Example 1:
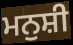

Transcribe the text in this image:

ਮਨੁਸ਼ੀ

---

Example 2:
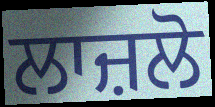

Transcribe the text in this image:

ਲਾਜ਼ਲੋ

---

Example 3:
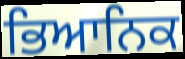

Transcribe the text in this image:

ਭਿਆਨਿਕ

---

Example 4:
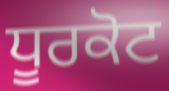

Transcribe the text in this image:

ਧੂਰਕੋਟ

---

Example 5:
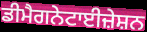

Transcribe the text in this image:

ਡੀਮੈਗਨੇਟਾਈਜ਼ੇਸ਼ਨ